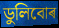
ডুলিবোৰ